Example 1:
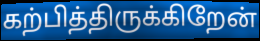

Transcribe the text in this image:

கற்பித்திருக்கிறேன்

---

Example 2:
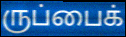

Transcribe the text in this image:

ருப்பைக்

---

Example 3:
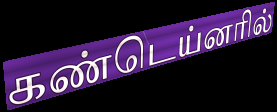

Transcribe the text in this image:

கண்டெய்னரில்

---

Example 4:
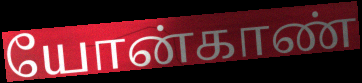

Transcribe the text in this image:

யோன்காண்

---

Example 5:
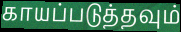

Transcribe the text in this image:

காயப்படுத்தவும்